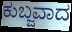
ಕುಬ್ಜವಾದ